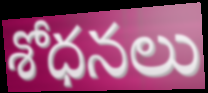
శోధనలు